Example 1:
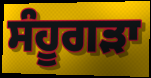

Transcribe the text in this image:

ਸੰਹੂਗੜਾ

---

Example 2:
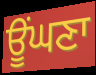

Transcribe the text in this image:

ਊਂਘਣਾ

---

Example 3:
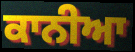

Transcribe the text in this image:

ਕਾਨੀਆ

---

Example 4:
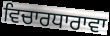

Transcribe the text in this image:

ਵਿਚਾਰਧਾਰਾਵਾ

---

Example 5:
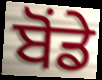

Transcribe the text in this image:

ਬੋਂਡੇ